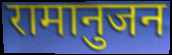
रामानुजन